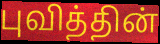
புவித்தின்